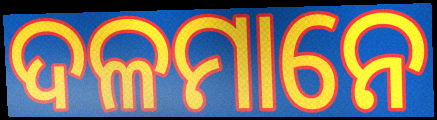
ଦଳମାନେ